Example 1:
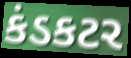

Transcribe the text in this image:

કંડકટર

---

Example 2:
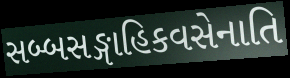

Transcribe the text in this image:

સબ્બસઙ્ગાહિકવસેનાતિ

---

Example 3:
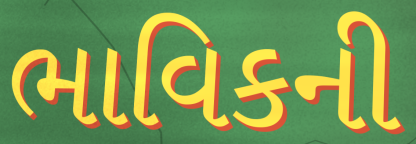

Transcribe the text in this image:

ભાવિકની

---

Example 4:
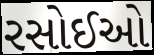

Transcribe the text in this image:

રસોઈઓ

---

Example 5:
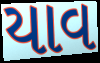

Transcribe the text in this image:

યાવ